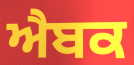
ਐਬਕ